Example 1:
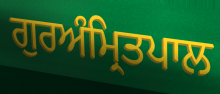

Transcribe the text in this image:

ਗੁਰਅੰਮ੍ਰਿਤਪਾਲ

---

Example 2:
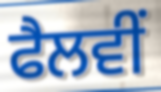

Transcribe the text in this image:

ਫੈਲਵੀਂ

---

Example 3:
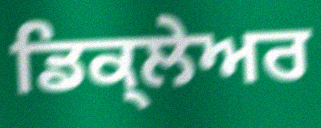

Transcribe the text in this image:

ਡਿਕ੍ਲੇਅਰ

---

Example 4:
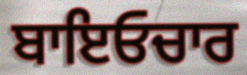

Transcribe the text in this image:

ਬਾਇਓਚਾਰ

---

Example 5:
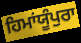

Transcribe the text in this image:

ਹਿਮਾਂਯੂੰਪੁਰਾ